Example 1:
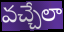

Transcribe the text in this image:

వచ్చేలా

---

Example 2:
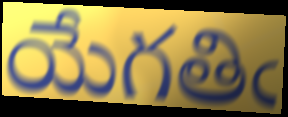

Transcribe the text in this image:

యేగతిఁ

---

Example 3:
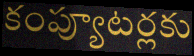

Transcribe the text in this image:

కంప్యూటర్లకు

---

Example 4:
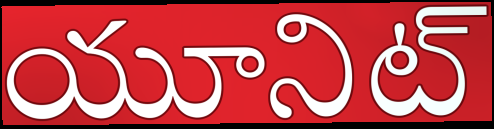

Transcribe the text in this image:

యూనిట్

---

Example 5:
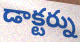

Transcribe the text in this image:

డాక్టర్ను